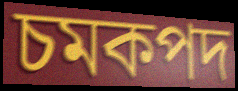
চমকপদ